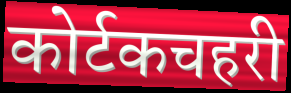
कोर्टकचहरी